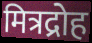
मित्रद्रोह